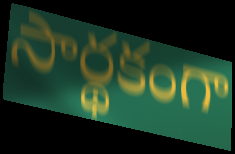
సార్థకంగా